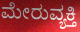
ಮೇರುವ್ಯಕ್ತಿ